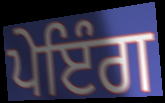
ਪੇਇੰਗ